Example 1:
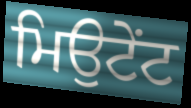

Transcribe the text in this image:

ਮਿਉਟੇਂਟ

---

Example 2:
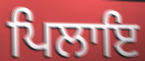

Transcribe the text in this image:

ਪਿਲਾਇ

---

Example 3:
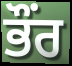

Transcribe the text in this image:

ਭੌਂਰ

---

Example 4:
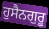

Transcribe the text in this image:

ਹੁਸੈਨਗੁਰੂ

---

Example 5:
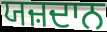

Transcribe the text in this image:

ਯਜ਼ਦਾਨ